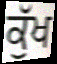
ਕੁੱਖ